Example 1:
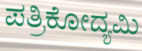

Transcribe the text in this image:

ಪತ್ರಿಕೋದ್ಯಮಿ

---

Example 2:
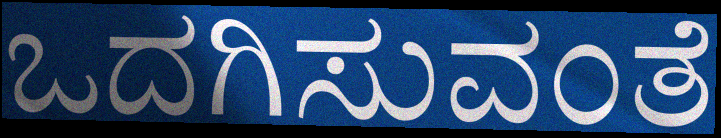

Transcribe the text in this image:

ಒದಗಿಸುವಂತೆ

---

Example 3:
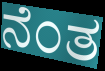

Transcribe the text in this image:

ನೆಂತ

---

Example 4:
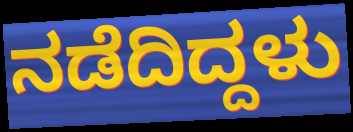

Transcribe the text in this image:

ನಡೆದಿದ್ದಳು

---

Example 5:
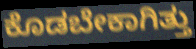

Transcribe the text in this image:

ಕೊಡಬೇಕಾಗಿತ್ತು